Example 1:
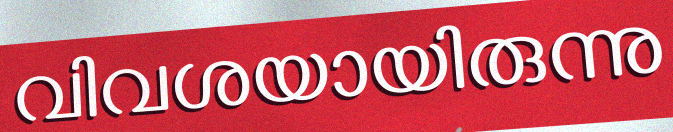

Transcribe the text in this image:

വിവശയായിരുന്നു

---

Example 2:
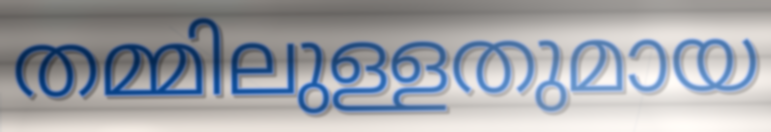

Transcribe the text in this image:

തമ്മിലുള്ളതുമായ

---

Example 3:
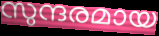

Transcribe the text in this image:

സുന്ദരമായ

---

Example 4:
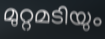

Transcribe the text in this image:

മുറ്റമടിയും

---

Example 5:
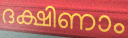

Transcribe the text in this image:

ദക്ഷിണാം